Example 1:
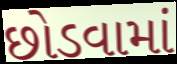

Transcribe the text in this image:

છોડવામાં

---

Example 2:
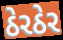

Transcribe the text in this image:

ઠેરઠેર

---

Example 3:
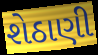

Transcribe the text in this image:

શેઠાણી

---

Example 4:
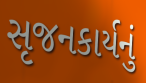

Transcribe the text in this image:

સૃજનકાર્યનું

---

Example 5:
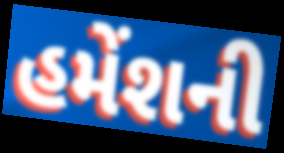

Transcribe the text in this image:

હમેંશની